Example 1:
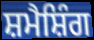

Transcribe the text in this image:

ਸ਼ਮੈਸ਼ਿੰਗ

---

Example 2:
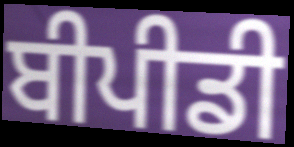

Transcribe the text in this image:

ਬੀਪੀਡੀ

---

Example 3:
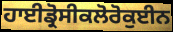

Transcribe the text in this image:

ਹਾਈਡ੍ਰੋਸੀਕਲੋਰੋਕੁਈਨ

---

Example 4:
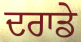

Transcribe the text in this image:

ਦਰਾਡੇ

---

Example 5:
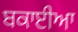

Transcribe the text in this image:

ਬਕਾਈਆ